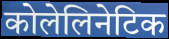
कोलेलिनेटिक